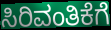
ಸಿರಿವಂತಿಕೆಗೆ